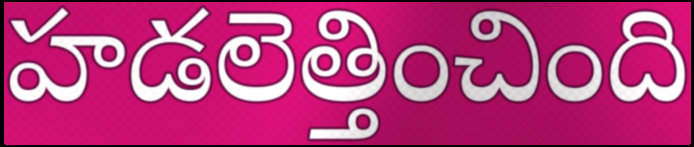
హడలెత్తించింది